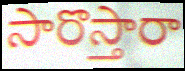
సారొస్తారా